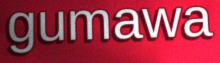
gumawa